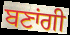
ਬਣਾਂਗੀ